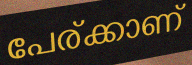
പേര്ക്കാണ്